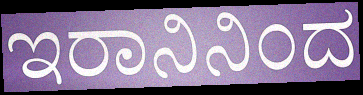
ಇರಾನಿನಿಂದ